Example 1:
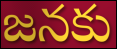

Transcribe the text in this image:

జనకు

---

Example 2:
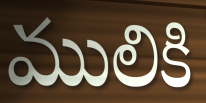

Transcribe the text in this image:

ములికి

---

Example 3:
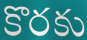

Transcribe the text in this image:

కొరకు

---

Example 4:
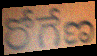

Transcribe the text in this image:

రోగేణ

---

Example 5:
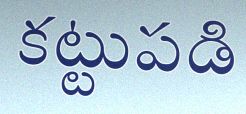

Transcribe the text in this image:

కట్టుపడి